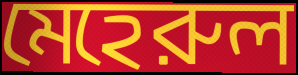
মেহেরুল